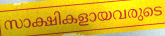
സാക്ഷികളായവരുടെ